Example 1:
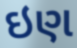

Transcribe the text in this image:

ઇણ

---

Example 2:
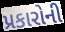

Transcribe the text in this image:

પ્રકારોની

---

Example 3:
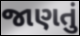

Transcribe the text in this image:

જાણતું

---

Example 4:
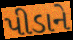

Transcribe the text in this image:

પીડાને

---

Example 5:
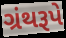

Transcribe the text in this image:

ગ્રંથરૂપે